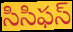
సిసిఫస్